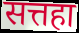
सत्तहा